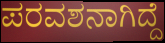
ಪರವಶನಾಗಿದ್ದೆ